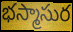
భస్మాసుర